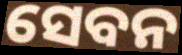
ସେବନ